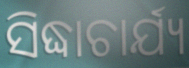
ସିଦ୍ଧାଚାର୍ଯ୍ୟ